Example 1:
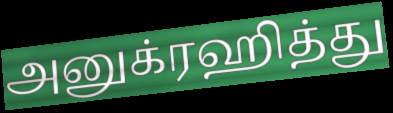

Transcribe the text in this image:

அனுக்ரஹித்து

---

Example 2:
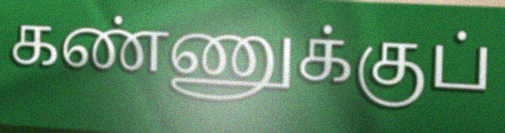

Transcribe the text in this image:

கண்ணுக்குப்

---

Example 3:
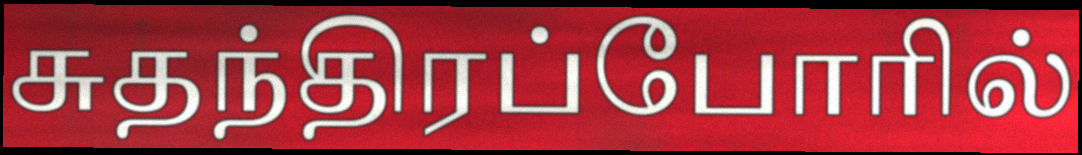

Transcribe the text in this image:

சுதந்திரப்போரில்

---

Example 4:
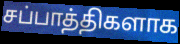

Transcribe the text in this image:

சப்பாத்திகளாக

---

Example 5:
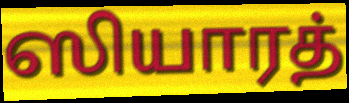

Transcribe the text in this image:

ஸியாரத்